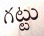
గట్టు